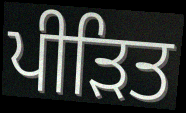
ਪੀੜਿਤ